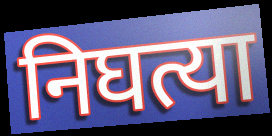
निघत्या